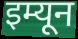
इम्‍यून